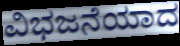
ವಿಭಜನೆಯಾದ